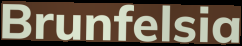
Brunfelsia